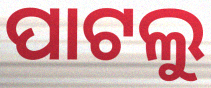
ପାଟଲୁ